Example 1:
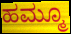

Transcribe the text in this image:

ಹಮ್ಮೂ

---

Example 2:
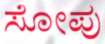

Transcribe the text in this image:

ಸೋಪು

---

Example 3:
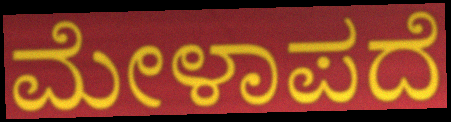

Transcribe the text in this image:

ಮೇಳಾಪದೆ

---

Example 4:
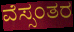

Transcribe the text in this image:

ವೆಸ್ಸಂತರ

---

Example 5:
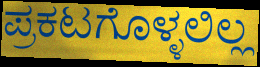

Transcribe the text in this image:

ಪ್ರಕಟಗೊಳ್ಳಲಿಲ್ಲ